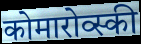
कोमारोव्स्की